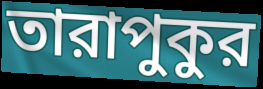
তারাপুকুর